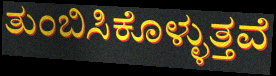
ತುಂಬಿಸಿಕೊಳ್ಳುತ್ತವೆ